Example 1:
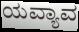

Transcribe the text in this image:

ಯವ್ಯಾವ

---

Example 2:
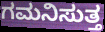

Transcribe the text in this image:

ಗಮನಿಸುತ್ತ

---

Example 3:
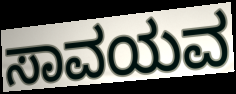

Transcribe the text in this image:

ಸಾವಯವ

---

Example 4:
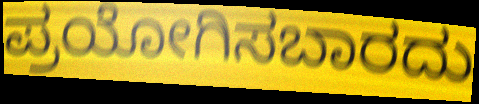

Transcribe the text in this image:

ಪ್ರಯೋಗಿಸಬಾರದು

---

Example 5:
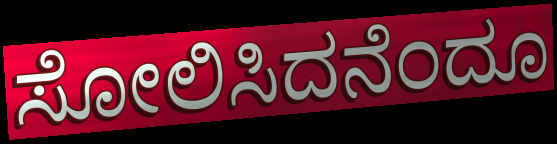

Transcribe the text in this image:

ಸೋಲಿಸಿದನೆಂದೂ